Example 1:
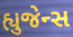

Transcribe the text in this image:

હ્યુજેન્સ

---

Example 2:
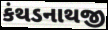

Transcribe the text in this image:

કંથડનાથજી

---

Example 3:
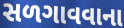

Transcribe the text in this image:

સળગાવવાના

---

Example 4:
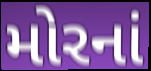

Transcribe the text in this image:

મોરનાં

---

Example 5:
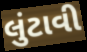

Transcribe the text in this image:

લુંટાવી